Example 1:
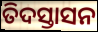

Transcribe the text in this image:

ତିଦସ୍ତାସନ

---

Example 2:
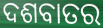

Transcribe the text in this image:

ଦଶବାତର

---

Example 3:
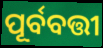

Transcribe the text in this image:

ପୂର୍ବବତ୍ତୀ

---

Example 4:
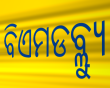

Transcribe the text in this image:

ବିଏମଡବ୍ଲ୍ୟୁ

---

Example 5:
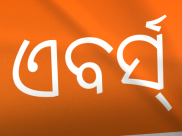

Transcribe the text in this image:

ଏବର୍ସ୍